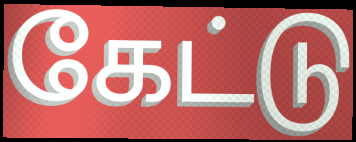
கேட்டு